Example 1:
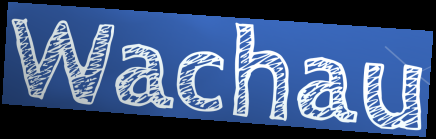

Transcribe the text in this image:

Wachau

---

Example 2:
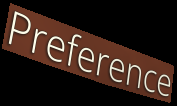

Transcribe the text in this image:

Preference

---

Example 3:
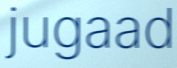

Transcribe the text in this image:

jugaad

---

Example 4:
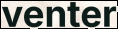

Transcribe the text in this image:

venter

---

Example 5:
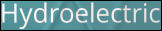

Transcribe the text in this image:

Hydroelectric